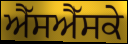
ਐੱਸਐੱਸਕੇ